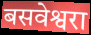
बसवेश्वरा